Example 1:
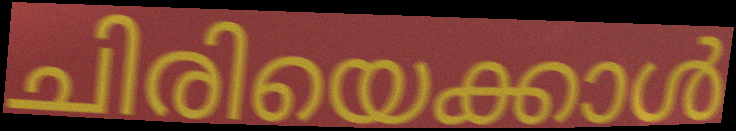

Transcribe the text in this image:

ചിരിയെക്കാൾ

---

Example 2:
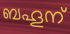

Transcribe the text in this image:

ബഹൂന്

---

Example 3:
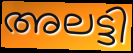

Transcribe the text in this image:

അലട്ടി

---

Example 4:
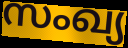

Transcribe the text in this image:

സംഖ്യ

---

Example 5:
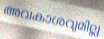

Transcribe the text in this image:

അവകാശവുമില്ല